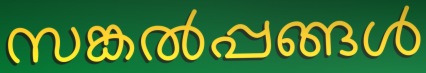
സങ്കൽപ്പങ്ങൾ